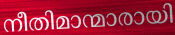
നീതിമാന്മാരായി